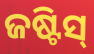
ଜଷ୍ଟିସ୍